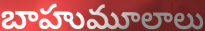
బాహుమూలాలు